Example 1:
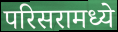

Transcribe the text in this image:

परिसरामध्ये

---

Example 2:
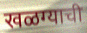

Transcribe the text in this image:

खळग्याची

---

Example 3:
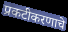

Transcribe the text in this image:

प्रकटीकरणाचे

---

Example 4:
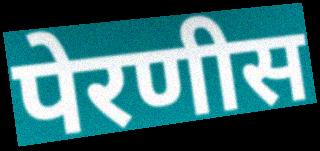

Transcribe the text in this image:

पेरणीस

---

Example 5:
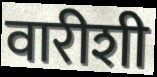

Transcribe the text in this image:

वारीशी